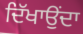
ਦਿੱਖਾਉਂਦਾ